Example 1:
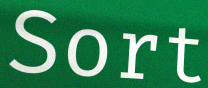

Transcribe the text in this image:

Sort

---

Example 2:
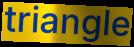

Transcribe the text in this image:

triangle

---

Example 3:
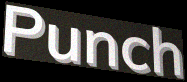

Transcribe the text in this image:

Punch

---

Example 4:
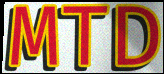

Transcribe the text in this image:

MTD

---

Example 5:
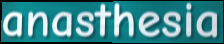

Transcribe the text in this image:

anasthesia